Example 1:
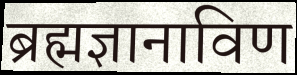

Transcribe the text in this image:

ब्रह्मज्ञानाविण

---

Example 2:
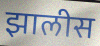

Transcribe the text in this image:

झालीस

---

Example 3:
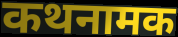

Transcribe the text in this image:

कथनामक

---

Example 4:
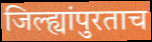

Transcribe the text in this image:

जिल्ह्यांपुरताच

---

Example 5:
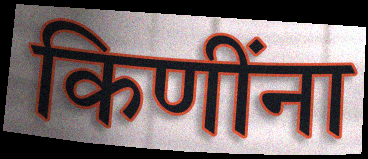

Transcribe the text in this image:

किणींना